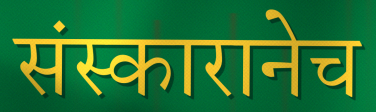
संस्कारानेच